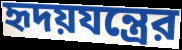
হৃদয়যন্ত্রের